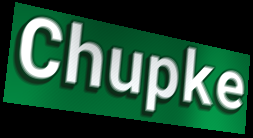
Chupke